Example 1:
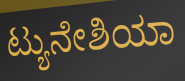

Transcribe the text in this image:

ಟ್ಯುನೇಶಿಯಾ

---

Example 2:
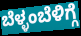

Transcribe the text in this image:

ಬೆಳ್ಳಂಬೆಳಿಗ್ಗೆ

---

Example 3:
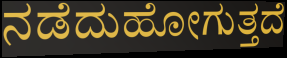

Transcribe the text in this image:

ನಡೆದುಹೋಗುತ್ತದೆ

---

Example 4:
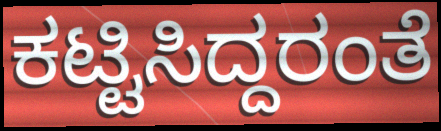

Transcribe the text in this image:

ಕಟ್ಟಿಸಿದ್ದರಂತೆ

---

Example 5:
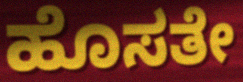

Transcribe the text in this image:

ಹೊಸತೇ